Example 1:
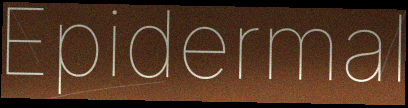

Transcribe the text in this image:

Epidermal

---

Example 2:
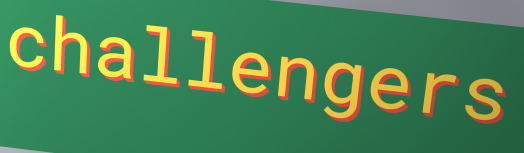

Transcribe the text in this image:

challengers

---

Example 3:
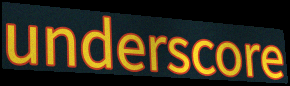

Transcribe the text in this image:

underscore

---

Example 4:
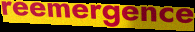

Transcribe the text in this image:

reemergence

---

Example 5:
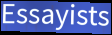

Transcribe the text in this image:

Essayists